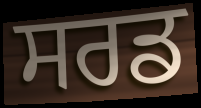
ਸਰਡ